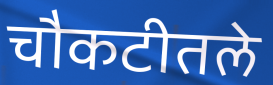
चौकटीतले